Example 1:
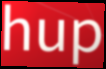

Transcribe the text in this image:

hup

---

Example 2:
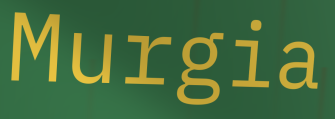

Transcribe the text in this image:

Murgia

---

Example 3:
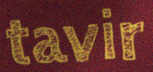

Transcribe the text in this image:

tavir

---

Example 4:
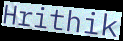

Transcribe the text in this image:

Hrithik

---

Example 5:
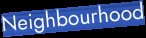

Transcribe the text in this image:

Neighbourhood